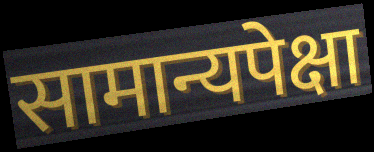
सामान्यपेक्षा